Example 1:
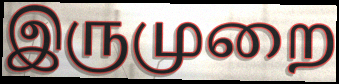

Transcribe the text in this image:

இருமுறை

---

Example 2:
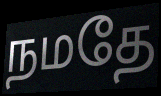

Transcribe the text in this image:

நமதே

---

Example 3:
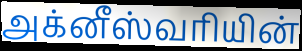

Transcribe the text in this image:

அக்னீஸ்வரியின்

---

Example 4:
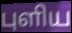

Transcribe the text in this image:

புளிய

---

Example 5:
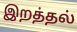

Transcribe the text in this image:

இறத்தல்